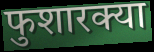
फुशारक्‍या